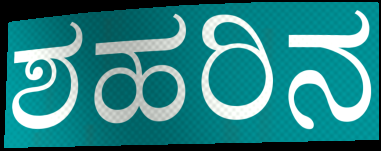
ಶಹರಿನ